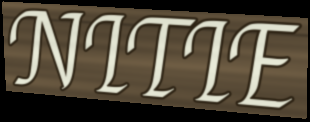
NITIE